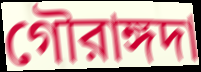
গৌরাঙ্গদা